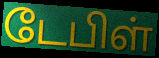
டேபிள்